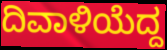
ದಿವಾಳಿಯೆದ್ದ